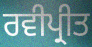
ਰਵੀਪ੍ਰੀਤ